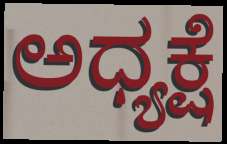
ಅಧ್ಯಕ್ಷೆ